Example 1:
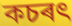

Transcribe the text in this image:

কচৰৎ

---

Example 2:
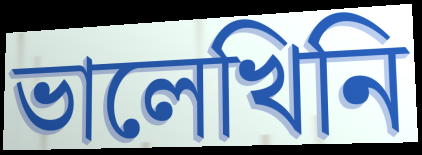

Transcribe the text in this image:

ভালেখিনি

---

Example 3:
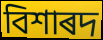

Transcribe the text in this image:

বিশাৰদ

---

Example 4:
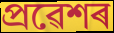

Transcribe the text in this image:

প্ৰৱেশৰ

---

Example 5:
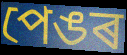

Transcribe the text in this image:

পেঙৰ